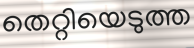
തെറ്റിയെടുത്ത